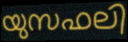
യുസഫലി